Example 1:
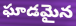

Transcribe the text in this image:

ఘాడమైన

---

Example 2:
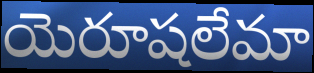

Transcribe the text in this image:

యెరూషలేమా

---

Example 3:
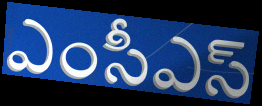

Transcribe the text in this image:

ఎంసీఎస్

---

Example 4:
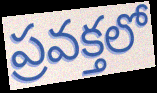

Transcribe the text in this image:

ప్రవక్తలో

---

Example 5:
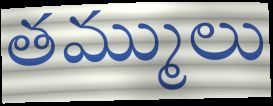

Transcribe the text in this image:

తమ్ములు